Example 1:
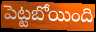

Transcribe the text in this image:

పెట్టబోయింది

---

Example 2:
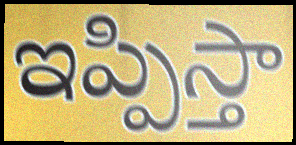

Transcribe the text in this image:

ఇప్పిస్తా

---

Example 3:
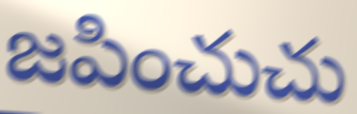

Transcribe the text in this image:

జపించుచు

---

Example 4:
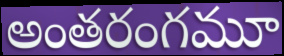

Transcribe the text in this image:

అంతరంగమూ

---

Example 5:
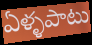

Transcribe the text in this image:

ఏళ్ళపాటు